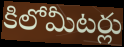
కిలోమీటర్లు